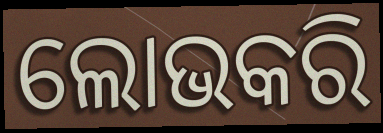
ଲୋଭକରି